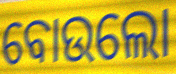
ବୋଉଲୋ